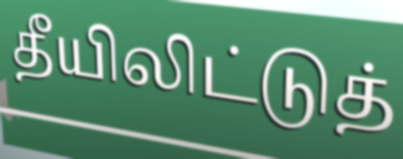
தீயிலிட்டுத்